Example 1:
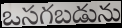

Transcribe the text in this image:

ఒసగబడును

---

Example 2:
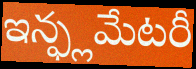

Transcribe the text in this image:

ఇన్ఫ్లమేటరీ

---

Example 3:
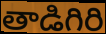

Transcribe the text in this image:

తాడిగిరి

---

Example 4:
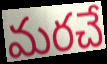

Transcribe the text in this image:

మరచే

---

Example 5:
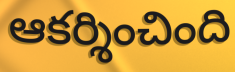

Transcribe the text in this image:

ఆకర్శించింది